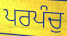
ਪਰਪੰਚੁ